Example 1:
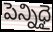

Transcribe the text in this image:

పెన్నిధై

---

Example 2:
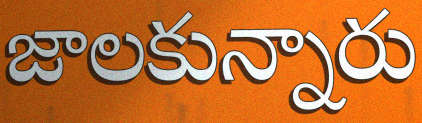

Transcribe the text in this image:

జాలకున్నారు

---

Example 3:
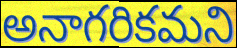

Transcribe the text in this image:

అనాగరికమని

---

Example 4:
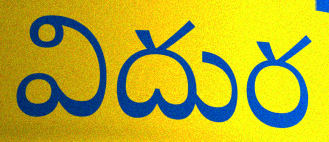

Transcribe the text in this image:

విదుర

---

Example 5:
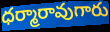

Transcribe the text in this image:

ధర్మారావుగారు